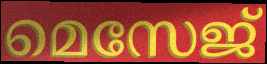
മെസേജ്